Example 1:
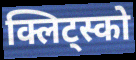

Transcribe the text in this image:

क्लिट्स्को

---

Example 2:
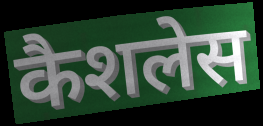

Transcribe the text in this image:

कैशलेस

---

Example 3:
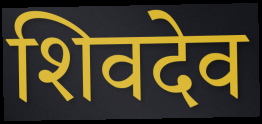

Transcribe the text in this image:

शिवदेव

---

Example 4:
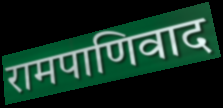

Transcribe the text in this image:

रामपाणिवाद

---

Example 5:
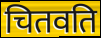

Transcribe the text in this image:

चितवति